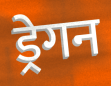
ड्रेगन